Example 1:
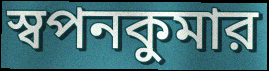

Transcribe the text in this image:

স্বপনকুমার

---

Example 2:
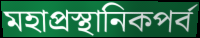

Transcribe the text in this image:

মহাপ্রস্থানিকপর্ব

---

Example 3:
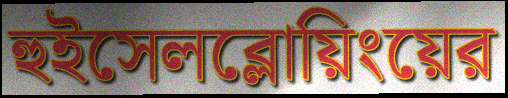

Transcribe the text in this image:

হুইসেলব্লোয়িংয়ের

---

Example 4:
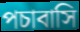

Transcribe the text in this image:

পচাবাসি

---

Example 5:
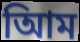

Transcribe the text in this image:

আিম